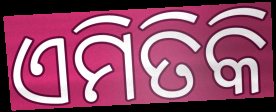
ଏମିତିକି